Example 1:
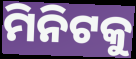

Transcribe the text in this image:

ମିନିଟକୁ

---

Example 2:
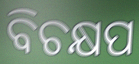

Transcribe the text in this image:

ବିଚକ୍ଷପ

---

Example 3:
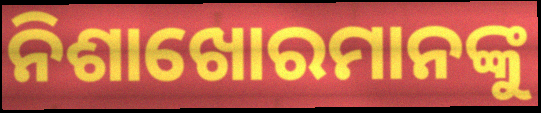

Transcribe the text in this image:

ନିଶାଖୋରମାନଙ୍କୁ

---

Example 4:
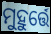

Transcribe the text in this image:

ମୁହୁର୍ତ୍ତେ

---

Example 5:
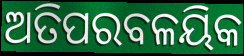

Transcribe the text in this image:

ଅତିପରବଳୟିକ